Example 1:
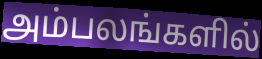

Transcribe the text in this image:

அம்பலங்களில்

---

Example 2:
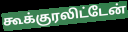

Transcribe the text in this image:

கூக்குரலிட்டேன்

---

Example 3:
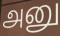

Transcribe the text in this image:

அனு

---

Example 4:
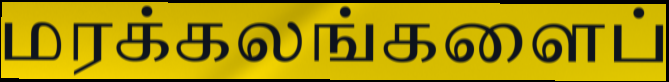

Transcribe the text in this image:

மரக்கலங்களைப்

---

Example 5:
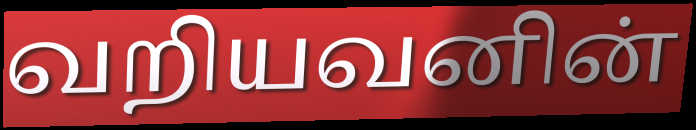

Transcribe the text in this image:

வறியவனின்